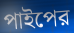
পাইপের